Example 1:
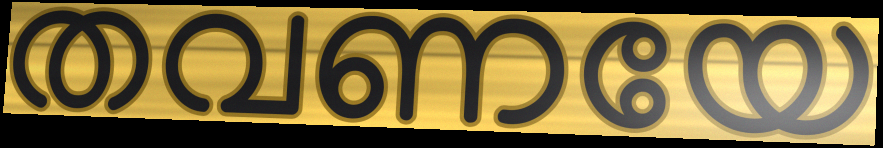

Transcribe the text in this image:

തവണയേ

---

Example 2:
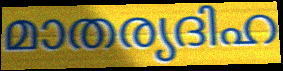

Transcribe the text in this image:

മാതര്യദിഹ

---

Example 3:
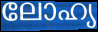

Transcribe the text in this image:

ലോഹ്യ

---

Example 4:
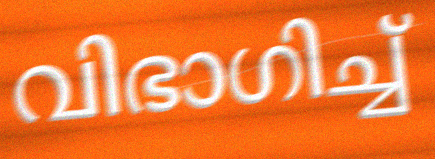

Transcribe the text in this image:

വിഭാഗിച്ച്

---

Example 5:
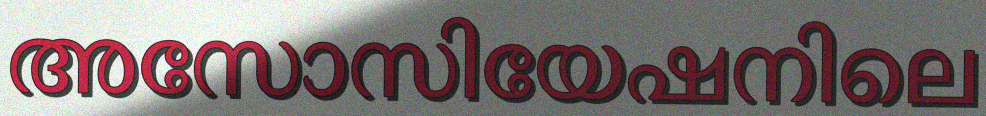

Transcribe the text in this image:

അസോസിയേഷനിലെ